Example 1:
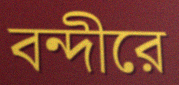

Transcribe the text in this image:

বন্দীরে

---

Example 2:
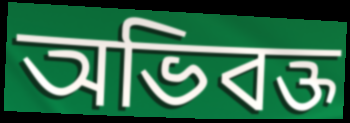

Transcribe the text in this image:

অভিবক্ত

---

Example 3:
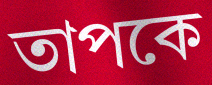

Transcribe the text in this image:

তাপকে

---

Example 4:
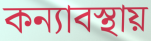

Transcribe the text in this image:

কন্যাবস্থায়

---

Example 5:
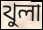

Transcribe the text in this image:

থুলা